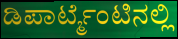
ಡಿಪಾರ್ಟ್ಮೆಂಟಿನಲ್ಲಿ